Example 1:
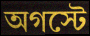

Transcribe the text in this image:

অগস্টে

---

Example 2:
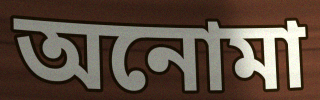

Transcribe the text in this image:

অনোমা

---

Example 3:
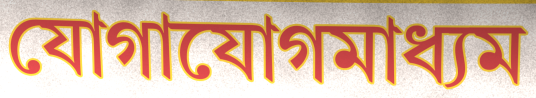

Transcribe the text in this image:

যোগাযোগমাধ্যম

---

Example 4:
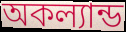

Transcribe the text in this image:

অকল্যান্ড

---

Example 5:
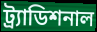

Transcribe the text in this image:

ট্র্যাডিশনাল